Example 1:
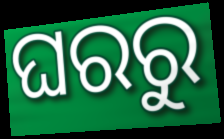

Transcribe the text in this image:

ଘରରୁ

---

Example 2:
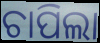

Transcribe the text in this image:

ଚାପିଲା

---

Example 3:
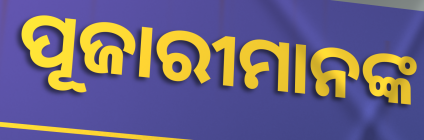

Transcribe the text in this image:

ପୂଜାରୀମାନଙ୍କ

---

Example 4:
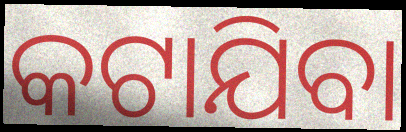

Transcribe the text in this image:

କଟାଯିବା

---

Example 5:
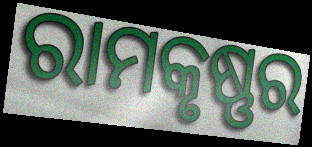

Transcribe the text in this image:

ରାମକୃଷ୍ଣର